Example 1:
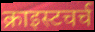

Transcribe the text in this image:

क्राइस्टचर्च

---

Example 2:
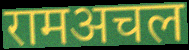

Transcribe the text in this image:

रामअचल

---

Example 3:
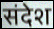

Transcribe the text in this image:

संदेश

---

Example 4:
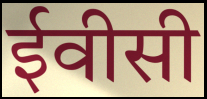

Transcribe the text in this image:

ईवीसी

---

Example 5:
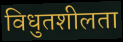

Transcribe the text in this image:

विधुतशीलता